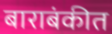
बाराबंकीत